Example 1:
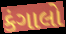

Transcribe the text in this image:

કંગાલો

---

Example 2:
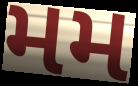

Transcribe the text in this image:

મમ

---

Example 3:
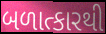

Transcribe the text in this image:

બળાત્કારથી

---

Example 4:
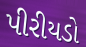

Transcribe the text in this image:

પીરીયડો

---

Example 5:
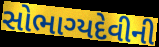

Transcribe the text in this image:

સોભાગ્યદેવીની